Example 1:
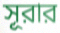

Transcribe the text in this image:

সূরার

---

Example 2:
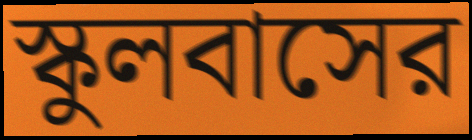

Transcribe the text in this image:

স্কুলবাসের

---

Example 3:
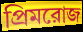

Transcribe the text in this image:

প্রিমরোজ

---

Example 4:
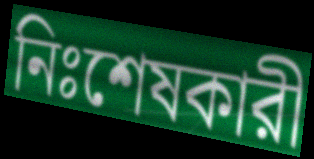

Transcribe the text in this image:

নিঃশেষকারী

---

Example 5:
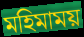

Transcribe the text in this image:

মহিমাময়